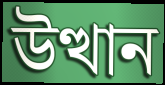
উত্থান